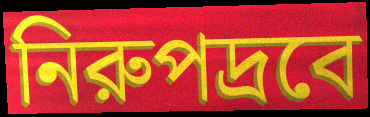
নিরুপদ্রবে